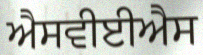
ਐਸਵੀਈਐਸ